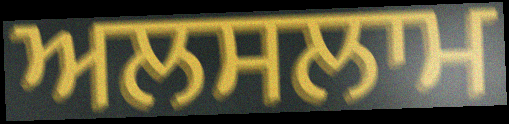
ਅਲਸਲਾਮ